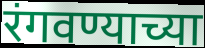
रंगवण्याच्या